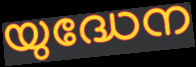
യുദ്ധേന